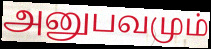
அனுபவமும்